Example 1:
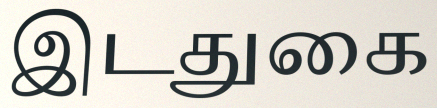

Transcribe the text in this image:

இடதுகை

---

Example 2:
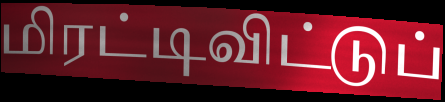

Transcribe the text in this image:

மிரட்டிவிட்டுப்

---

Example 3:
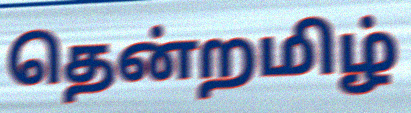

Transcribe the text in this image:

தென்றமிழ்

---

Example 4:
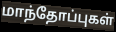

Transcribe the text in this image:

மாந்தோப்புகள்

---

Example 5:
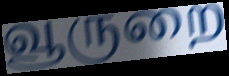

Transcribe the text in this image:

வூருறை